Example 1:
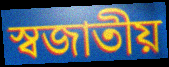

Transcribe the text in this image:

স্বজাতীয়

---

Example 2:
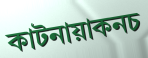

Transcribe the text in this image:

কাটনায়াকনচ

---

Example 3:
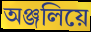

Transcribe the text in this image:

অঞ্জলিয়ে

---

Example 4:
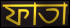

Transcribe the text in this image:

ফাতা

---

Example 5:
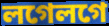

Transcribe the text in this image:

লগেলগে